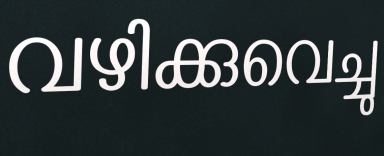
വഴിക്കുവെച്ചു